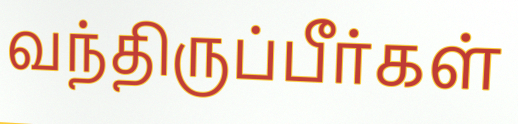
வந்திருப்பீர்கள்